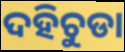
ଦହିଚୁଡା